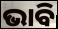
ଭାବି